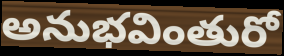
అనుభవింతురో